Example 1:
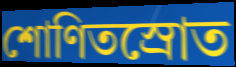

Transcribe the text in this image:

শোণিতস্রোত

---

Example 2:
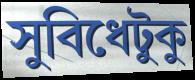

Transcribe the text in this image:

সুবিধেটুকু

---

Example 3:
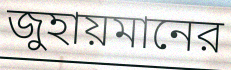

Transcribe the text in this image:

জুহায়মানের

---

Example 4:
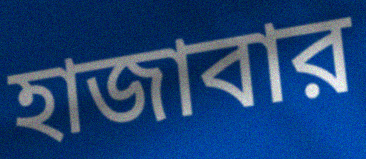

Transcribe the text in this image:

হাজাবার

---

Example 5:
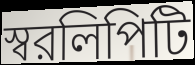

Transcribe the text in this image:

স্বরলিপিটি